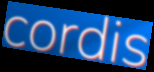
cordis